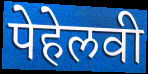
पेहेलवी